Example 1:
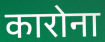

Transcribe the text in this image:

कारोना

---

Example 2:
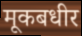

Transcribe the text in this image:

मूकबधीर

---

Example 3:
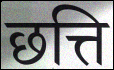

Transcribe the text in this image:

छत्ति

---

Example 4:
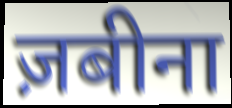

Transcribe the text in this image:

ज़बीना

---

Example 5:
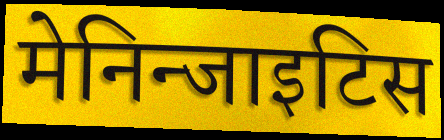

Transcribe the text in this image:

मेनिन्जाइटिस